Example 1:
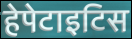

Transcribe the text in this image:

हेपेटाइटिस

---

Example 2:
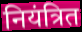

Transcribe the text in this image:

नियंत्रित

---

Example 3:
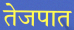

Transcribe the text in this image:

तेजपात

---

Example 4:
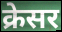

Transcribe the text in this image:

क्रेसर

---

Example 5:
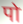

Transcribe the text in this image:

पो